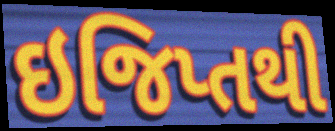
ઇજિપ્તથી